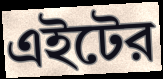
এইটের